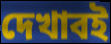
দেখাবই